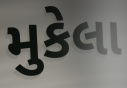
મુકેલા